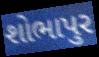
શોભાપુર